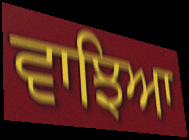
ਵਾਝਿਆ